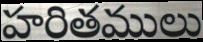
హరితములు